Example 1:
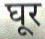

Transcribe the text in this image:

घूर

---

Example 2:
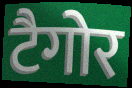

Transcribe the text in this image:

टैगोर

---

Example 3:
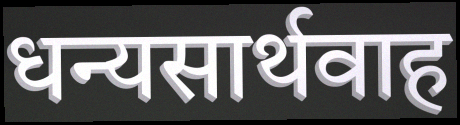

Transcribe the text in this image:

धन्यसार्थवाह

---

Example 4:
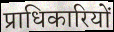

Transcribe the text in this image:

प्राधिकारियों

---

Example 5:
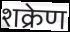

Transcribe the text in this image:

शक्रेण